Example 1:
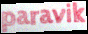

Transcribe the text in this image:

paravik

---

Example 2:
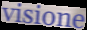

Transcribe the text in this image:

visione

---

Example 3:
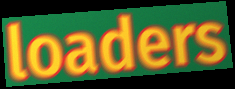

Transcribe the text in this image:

loaders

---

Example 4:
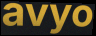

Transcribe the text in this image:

avyo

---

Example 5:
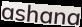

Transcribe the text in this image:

ashana